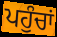
ਪਹੁੰਚਾਂ